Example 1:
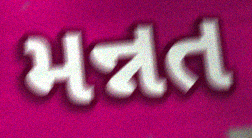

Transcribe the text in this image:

મન્નત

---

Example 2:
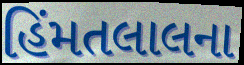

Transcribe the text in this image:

હિંમતલાલના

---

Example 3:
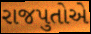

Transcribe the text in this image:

રાજપુતોએ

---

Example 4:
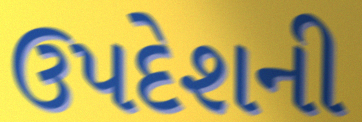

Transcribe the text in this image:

ઉપદેશની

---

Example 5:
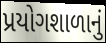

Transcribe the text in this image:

પ્રયોગશાળાનું